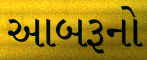
આબરૂનો